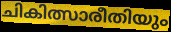
ചികിത്സാരീതിയും